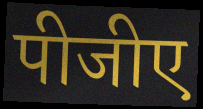
पीजीए